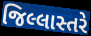
જિલ્લાસ્તરે